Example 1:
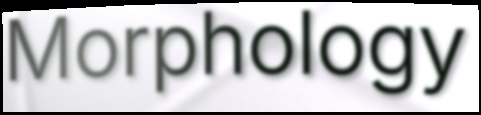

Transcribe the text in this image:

Morphology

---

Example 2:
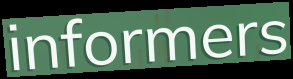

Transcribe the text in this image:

informers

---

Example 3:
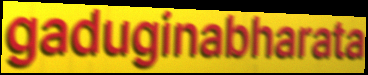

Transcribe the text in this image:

gaduginabharata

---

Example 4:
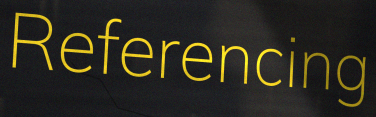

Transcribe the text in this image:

Referencing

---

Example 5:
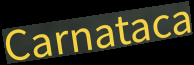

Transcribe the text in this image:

Carnataca